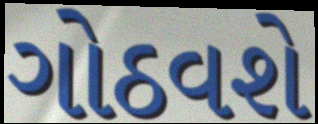
ગોઠવશે